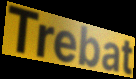
Trebat